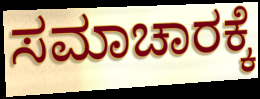
ಸಮಾಚಾರಕ್ಕೆ